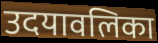
उदयावलिका